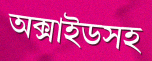
অক্সাইডসহ